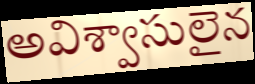
అవిశ్వాసులైన